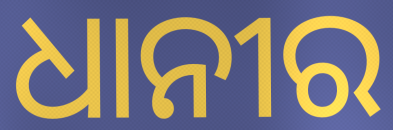
ଧାନୀର